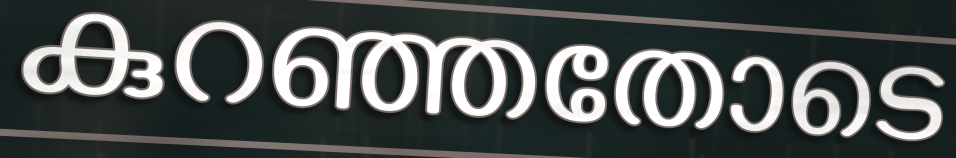
കുറഞ്ഞതോടെ